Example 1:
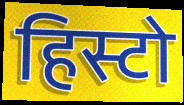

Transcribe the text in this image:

हिस्टो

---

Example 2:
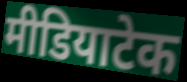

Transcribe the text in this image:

मीडियाटेक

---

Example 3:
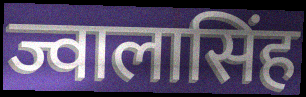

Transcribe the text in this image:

ज्वालासिंह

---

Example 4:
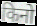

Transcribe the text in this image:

किनो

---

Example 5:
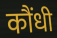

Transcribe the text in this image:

कौंधी